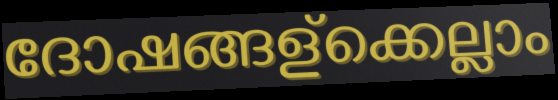
ദോഷങ്ങള്ക്കെല്ലാം